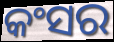
କଂସର